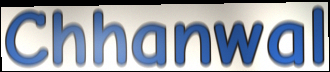
Chhanwal